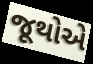
જૂથોએ